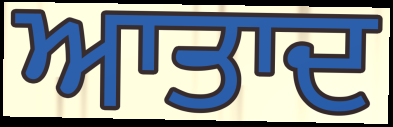
ਆਤਾਦ